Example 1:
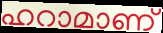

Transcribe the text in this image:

ഹറാമാണ്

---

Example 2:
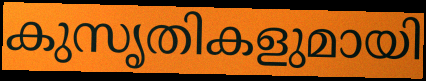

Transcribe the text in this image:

കുസൃതികളുമായി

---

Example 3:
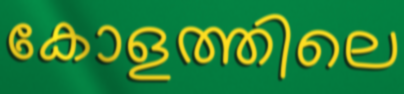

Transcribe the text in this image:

കോളത്തിലെ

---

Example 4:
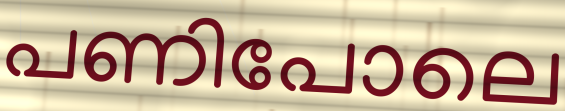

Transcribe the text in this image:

പണിപോലെ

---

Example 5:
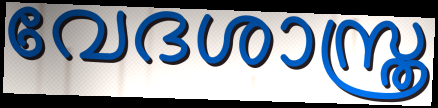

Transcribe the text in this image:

വേദശാസ്ത്ര